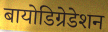
बायोडिग्रेडेशन